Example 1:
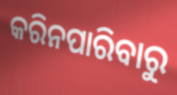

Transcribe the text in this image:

କରିନପାରିବାରୁ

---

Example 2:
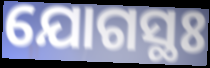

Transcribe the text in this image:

ଯୋଗସ୍ଥଃ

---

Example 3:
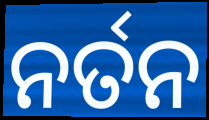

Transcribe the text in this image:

ନର୍ତନ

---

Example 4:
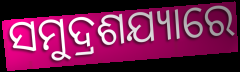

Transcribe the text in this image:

ସମୁଦ୍ରଶଯ୍ୟାରେ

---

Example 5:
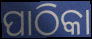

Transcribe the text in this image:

ପାଠିକା